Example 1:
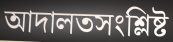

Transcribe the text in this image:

আদালতসংশ্লিষ্ট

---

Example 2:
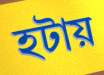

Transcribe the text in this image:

হটায়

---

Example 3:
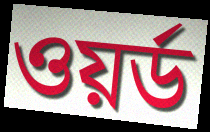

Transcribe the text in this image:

ওয়র্ড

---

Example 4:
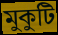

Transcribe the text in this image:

মুকুটি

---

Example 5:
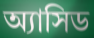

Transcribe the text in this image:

অ্যাসিড